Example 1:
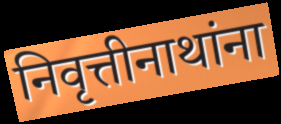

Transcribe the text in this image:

निवृत्तीनाथांना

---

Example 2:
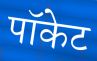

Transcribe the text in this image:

पॉकेट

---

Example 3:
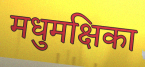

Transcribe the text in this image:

मधुमक्षिका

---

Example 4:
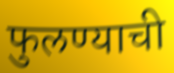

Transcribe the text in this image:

फुलण्याची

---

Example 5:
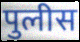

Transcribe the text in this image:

पुलीस